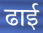
ढाई